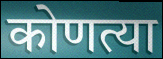
कोणत्या